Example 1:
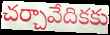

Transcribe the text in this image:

చర్చావేదికకు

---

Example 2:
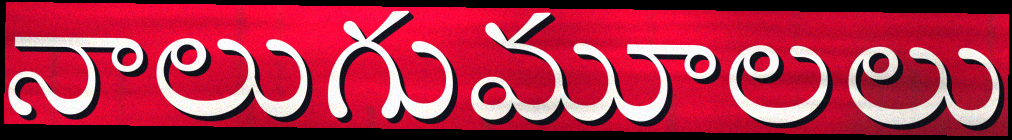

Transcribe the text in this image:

నాలుగుమూలలు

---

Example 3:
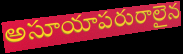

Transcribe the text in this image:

అసూయాపరురాలైన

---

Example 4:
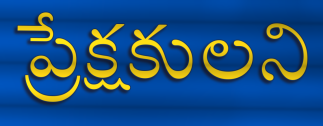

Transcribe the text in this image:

ప్రేక్షకులని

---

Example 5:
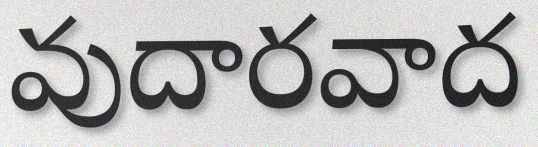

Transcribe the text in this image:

వుదారవాద